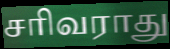
சரிவராது